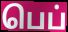
பெப்